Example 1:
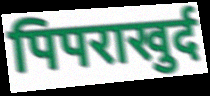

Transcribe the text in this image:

पिपराखुर्द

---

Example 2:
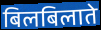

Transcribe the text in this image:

बिलबिलाते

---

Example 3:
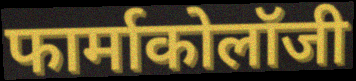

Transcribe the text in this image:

फार्माकोलॉजी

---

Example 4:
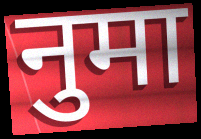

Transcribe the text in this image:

नुमा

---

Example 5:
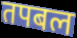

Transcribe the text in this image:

तपबल